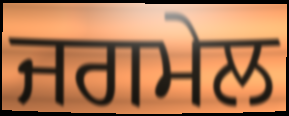
ਜਗਮੇਲ